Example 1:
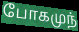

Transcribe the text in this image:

போகமுந்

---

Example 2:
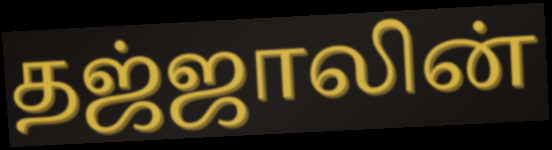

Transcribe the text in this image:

தஜ்ஜாலின்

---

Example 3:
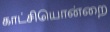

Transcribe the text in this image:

காட்சியொன்றை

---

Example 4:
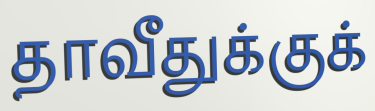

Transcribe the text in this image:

தாவீதுக்குக்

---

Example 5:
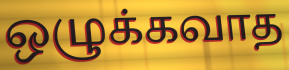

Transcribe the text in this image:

ஒழுக்கவாத